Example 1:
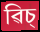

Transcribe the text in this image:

ৱিচ্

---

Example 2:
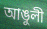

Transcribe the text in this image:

আঙুলী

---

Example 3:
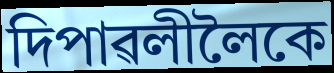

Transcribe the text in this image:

দিপাৱলীলৈকে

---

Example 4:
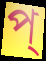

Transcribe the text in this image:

প্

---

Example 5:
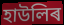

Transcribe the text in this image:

হাউলিৰ